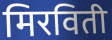
मिरविती